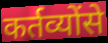
कर्तव्योंसे